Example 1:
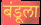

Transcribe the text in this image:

बंडूला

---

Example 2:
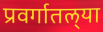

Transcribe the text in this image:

प्रवर्गातल्या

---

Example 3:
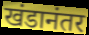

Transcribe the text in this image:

खंडानंतर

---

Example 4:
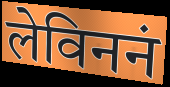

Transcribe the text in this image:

लेविननं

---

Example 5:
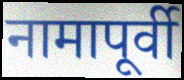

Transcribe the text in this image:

नामापूर्वी